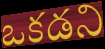
ఒకడని